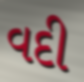
વદી